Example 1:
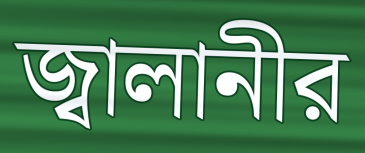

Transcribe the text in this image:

জ্বালানীর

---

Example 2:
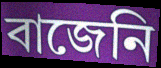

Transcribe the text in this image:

বাজেনি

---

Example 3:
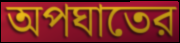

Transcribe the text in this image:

অপঘাতের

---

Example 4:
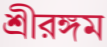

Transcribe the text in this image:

শ্রীরঙ্গম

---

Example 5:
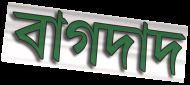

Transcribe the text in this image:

বাগদাদ